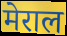
मेराल